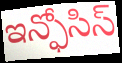
ఇన్ఫోసిస్